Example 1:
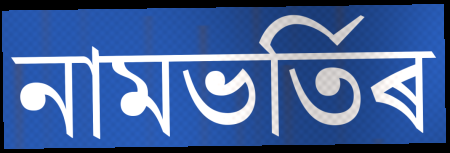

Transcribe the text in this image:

নামভৰ্তিৰ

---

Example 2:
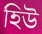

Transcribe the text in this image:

হিউ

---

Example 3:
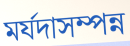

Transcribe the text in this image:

মৰ্যদাসম্পন্ন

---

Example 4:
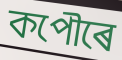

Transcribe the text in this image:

কপৌৰে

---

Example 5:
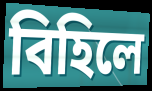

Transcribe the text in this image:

বিহিলে